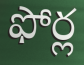
ఫోర్ల